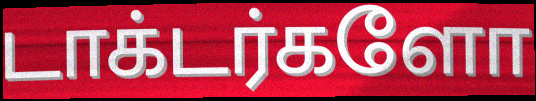
டாக்டர்களோ